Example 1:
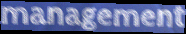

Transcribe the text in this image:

management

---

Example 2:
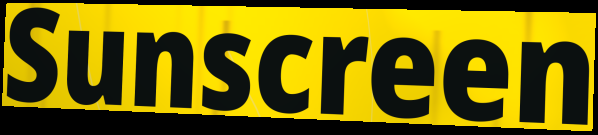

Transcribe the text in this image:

Sunscreen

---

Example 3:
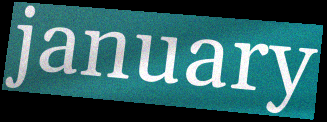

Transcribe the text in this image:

january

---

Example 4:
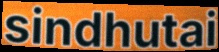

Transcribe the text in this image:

sindhutai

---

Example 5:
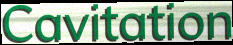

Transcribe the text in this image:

Cavitation